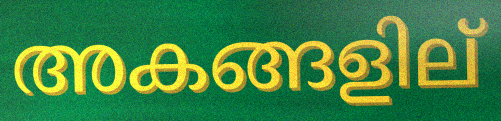
അകങ്ങളില്